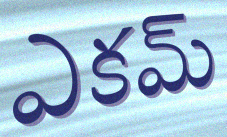
ఎకమ్